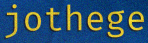
jothege